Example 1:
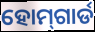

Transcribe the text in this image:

ହୋମ୍‌ଗାର୍ଡ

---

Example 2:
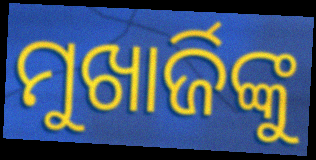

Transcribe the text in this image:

ମୁଖାର୍ଜିଙ୍କୁ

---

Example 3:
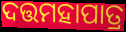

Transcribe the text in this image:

ଦତ୍ତମହାପାତ୍ର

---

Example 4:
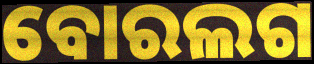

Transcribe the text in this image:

ବୋରଲଗ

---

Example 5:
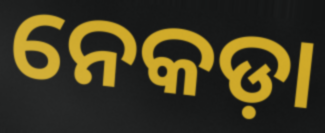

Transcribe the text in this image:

ନେକଡ଼ା